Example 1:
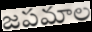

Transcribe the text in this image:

జపమాల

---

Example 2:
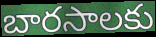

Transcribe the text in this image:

బారసాలకు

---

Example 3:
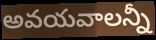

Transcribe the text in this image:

అవయవాలన్నీ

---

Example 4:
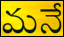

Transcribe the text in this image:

మనే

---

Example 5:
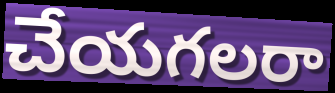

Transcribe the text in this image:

చేయగలరా